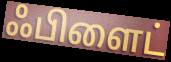
ஃபிளைட்